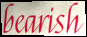
bearish